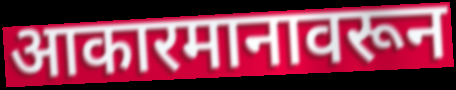
आकारमानावरून